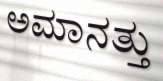
ಅಮಾನತ್ತು